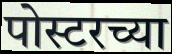
पोस्टरच्या